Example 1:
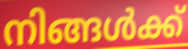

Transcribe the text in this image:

നിങ്ങൾക്ക്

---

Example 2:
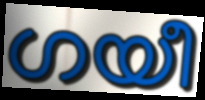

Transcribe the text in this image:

ഗയീ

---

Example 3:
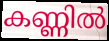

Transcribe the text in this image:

കണ്ണിൽ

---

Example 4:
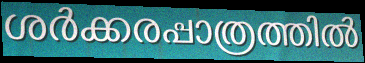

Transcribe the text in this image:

ശർക്കരപ്പാത്രത്തിൽ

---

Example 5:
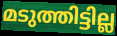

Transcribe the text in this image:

മടുത്തിട്ടില്ല